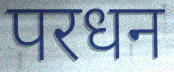
परधन